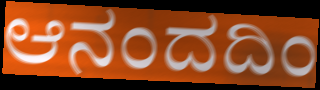
ಆನಂದದಿಂ